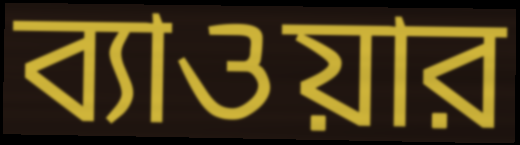
ব্যাওয়ার